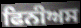
ਫਿਨੀਅਸ